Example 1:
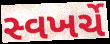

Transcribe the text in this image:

સ્વખર્ચે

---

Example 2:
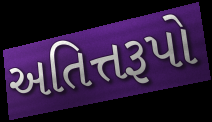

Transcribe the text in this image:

અતિત્તરૂપો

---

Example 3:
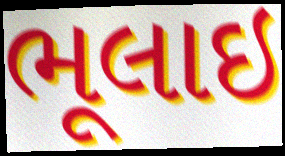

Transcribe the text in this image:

ભૂલાઇ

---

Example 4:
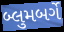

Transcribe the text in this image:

બ્લુમબર્ગે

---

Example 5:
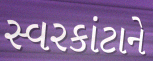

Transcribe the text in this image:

સ્વરકાંટાને